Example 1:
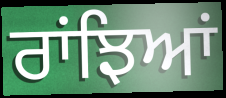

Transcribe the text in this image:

ਰਾਂਝਿਆਂ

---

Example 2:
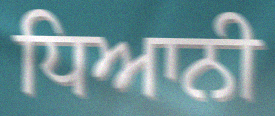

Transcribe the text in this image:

ਧਿਆਨੀ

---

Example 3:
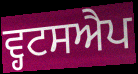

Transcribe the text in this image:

ਵ੍ਹਟਸਐਪ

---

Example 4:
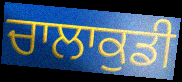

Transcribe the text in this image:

ਚਾਲਾਕੁਡੀ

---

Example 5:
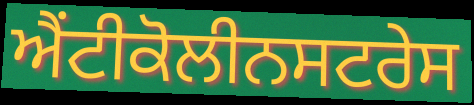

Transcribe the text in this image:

ਐਂਟੀਕੋਲੀਨਸਟਰੇਸ